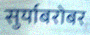
सुर्याबरोबर